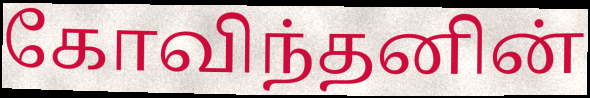
கோவிந்தனின்